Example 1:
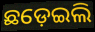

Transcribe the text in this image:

ଛଡ଼େଇଲି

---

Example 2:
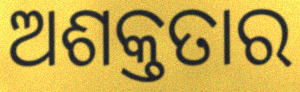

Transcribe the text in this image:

ଅଶକ୍ତତାର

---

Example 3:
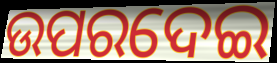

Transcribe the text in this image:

ଉପରଦେଇ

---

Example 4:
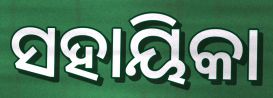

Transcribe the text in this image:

ସହାୟିକା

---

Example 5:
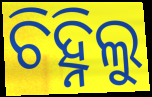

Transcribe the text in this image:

ଚିହ୍ନିଲୁ